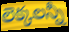
లెక్కలన్నీ